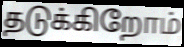
தடுக்கிறோம்